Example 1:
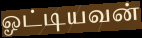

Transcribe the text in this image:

ஓட்டியவன்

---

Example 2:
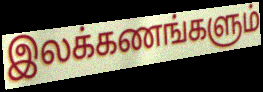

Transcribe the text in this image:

இலக்கணங்களும்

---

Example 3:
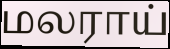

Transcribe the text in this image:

மலராய்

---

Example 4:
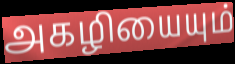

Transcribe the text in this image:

அகழியையும்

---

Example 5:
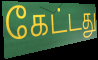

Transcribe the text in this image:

கேட்டது